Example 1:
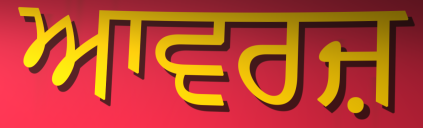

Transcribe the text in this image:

ਆਵਰਜ਼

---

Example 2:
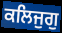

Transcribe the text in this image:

ਕਲਿਜੁਗੁ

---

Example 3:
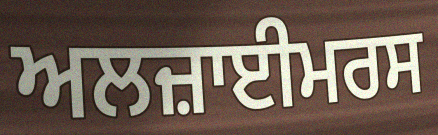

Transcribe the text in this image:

ਅਲਜ਼ਾਈਮਰਸ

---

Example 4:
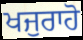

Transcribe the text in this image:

ਖਜੁਰਾਹੋ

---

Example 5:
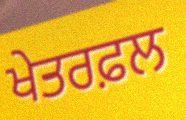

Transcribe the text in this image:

ਖੇਤਰਫ਼ਲ